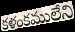
కళంకములేని